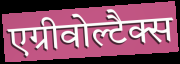
एग्रीवोल्टैक्स